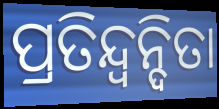
ପ୍ରତିନ୍ଦ୍ବନ୍ଦିତା